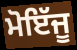
ਮੋਇੱਜੂ